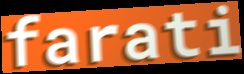
farati